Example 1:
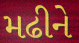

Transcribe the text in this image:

મઢીને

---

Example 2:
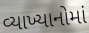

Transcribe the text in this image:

વ્યાખ્યાનોમાં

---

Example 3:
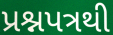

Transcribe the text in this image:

પ્રશ્નપત્રથી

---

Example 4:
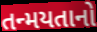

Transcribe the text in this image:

તન્મયતાનો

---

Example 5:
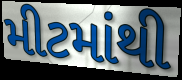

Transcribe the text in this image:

મીટમાંથી